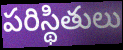
పరిస్థితులు